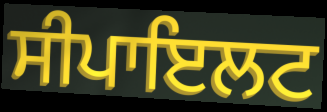
ਸੀਪਾਇਲਟ